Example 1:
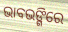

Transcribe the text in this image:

ଭାବଭଙ୍ଗିରେ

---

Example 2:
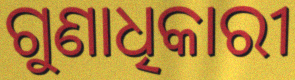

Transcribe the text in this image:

ଗୁଣାଧିକାରୀ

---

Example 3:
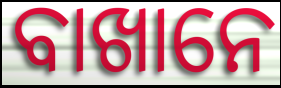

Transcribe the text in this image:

ବାଖାନେ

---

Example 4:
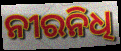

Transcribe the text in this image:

ନୀରନିଧି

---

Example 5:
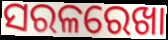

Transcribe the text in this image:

ସରଳରେଖା